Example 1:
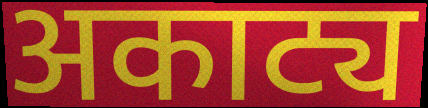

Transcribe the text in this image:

अकाट्य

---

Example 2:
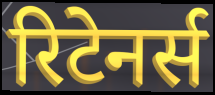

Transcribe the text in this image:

रिटेनर्स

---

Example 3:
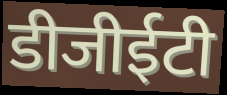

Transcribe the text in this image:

डीजीईटी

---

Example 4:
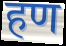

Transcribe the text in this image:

हण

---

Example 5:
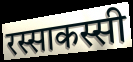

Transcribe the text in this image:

रस्साकस्सी